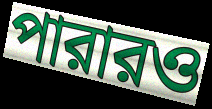
পারারও